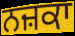
ਨਜ਼ਕਾ